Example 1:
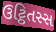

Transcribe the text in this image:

ઉટ્ઠિતસ્સ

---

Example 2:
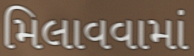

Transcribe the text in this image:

મિલાવવામાં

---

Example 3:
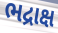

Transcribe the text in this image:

ભદ્રાક્ષ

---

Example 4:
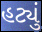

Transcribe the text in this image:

હટ્યું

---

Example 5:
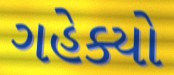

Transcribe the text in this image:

ગહેક્યો